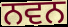
ਨਵਨ